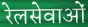
रेलसेवाओं